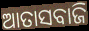
ଆତାସବାଜି